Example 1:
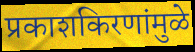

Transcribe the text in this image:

प्रकाशकिरणांमुळे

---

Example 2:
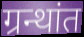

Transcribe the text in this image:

ग्रन्थांत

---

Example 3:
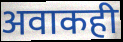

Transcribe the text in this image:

अवाकही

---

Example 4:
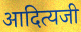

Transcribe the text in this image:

आदित्यजी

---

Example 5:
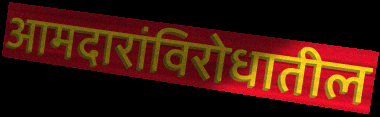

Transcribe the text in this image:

आमदारांविरोधातील